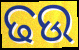
ଢଉ